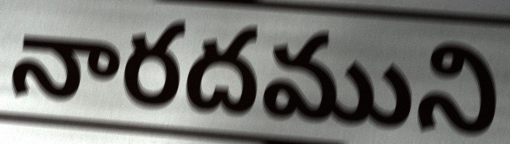
నారదముని